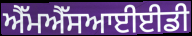
ਐੱਮਐੱਸਆਈਈਡੀ